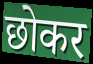
छोकर